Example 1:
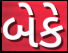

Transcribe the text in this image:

બેકે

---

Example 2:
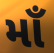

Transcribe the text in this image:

માઁ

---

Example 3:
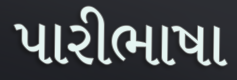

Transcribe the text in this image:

પારીભાષા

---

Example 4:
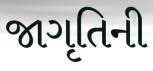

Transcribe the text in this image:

જાગૃતિની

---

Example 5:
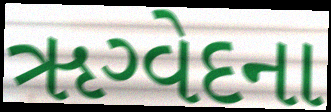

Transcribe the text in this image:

ૠગ્વેદના